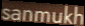
sanmukh